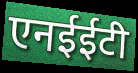
एनईईटी